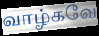
வாழ்கவே